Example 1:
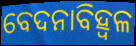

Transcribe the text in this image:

ବେଦନାବିହ୍ୱଳ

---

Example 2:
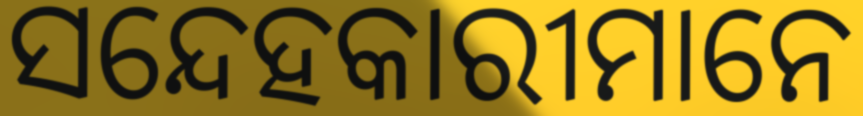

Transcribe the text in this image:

ସନ୍ଦେହକାରୀମାନେ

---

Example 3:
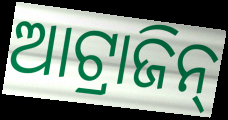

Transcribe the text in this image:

ଆଟ୍ରାଜିନ୍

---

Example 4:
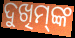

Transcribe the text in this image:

ଦୁଖିମ୍‌ଙ୍କ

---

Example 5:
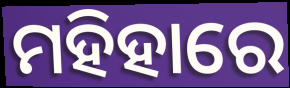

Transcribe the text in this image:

ମହିହାରେ